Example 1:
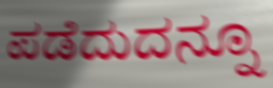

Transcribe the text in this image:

ಪಡೆದುದನ್ನೂ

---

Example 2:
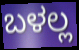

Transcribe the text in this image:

ಬಳಲ್ಲ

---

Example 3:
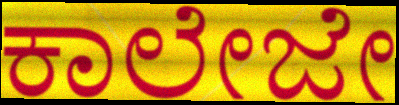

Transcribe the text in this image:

ಕಾಲೇಜೇ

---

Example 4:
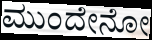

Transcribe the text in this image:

ಮುಂದೇನೋ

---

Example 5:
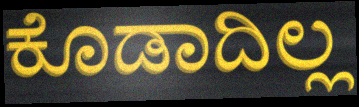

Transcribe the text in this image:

ಕೊಡಾದಿಲ್ಲ